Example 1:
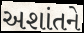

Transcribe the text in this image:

અશાંતને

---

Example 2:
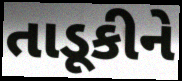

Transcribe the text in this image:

તાડૂકીને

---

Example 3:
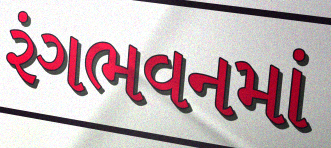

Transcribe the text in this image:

રંગભવનમાં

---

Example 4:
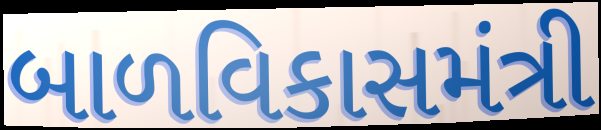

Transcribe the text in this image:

બાળવિકાસમંત્રી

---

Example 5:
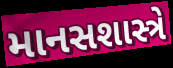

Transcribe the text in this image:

માનસશાસ્ત્રે